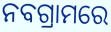
ନବଗ୍ରାମରେ